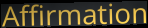
Affirmation